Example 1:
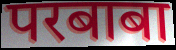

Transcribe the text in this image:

परबाबा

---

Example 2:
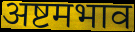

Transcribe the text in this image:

अष्टमभाव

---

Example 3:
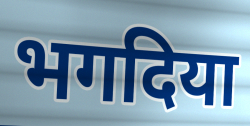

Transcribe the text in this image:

भगदिया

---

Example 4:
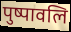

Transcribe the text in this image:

पुष्पावलि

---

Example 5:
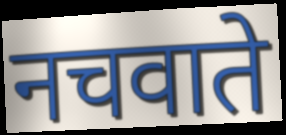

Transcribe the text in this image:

नचवाते